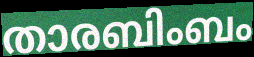
താരബിംബം